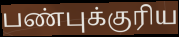
பண்புக்குரிய